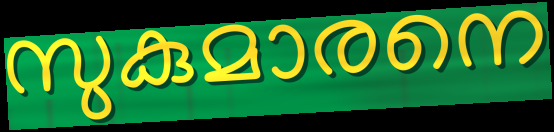
സുകുമാരനെ